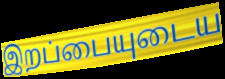
இறப்பையுடைய